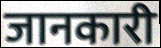
जानकारी